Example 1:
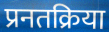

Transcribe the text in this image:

प्रनतक्रिया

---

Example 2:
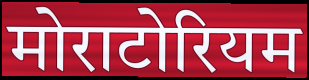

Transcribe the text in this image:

मोराटोरियम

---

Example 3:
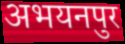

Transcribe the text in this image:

अभयनपुर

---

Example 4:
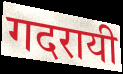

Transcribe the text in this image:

गदरायी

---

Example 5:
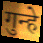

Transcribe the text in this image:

गुन्हे